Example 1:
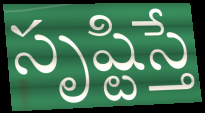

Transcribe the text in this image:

సృష్టిస్తే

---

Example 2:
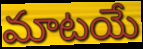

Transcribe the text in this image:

మాటయే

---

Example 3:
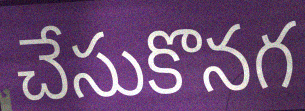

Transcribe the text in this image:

చేసుకొనగ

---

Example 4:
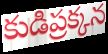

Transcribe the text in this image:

కుడిప్రక్కన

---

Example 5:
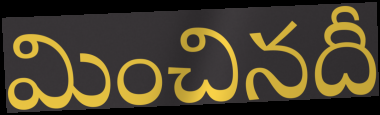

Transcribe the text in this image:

మించినదీ